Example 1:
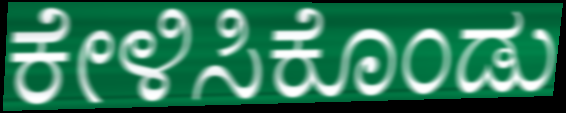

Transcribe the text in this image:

ಕೇಳಿಸಿಕೊಂಡು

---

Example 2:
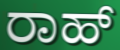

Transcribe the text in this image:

ರಾಹ್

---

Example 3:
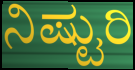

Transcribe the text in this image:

ನಿಷ್ಟುರಿ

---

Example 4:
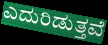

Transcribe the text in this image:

ಎದುರಿಡುತ್ತವೆ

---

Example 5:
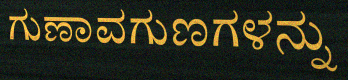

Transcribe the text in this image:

ಗುಣಾವಗುಣಗಳನ್ನು